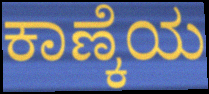
ಕಾಣ್ಕೆಯ